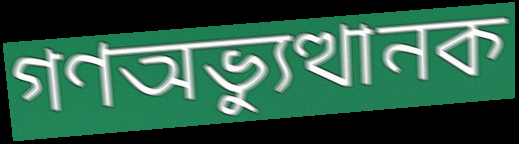
গণঅভ্যুত্থানক